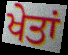
ਖੇਤਾਂ